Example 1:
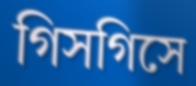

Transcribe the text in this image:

গিসগিসে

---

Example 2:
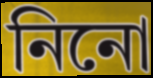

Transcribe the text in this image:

নিনো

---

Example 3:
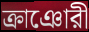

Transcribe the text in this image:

ক্রাঞোরী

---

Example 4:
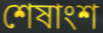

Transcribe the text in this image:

শেষাংশ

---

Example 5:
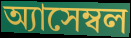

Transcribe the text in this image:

অ্যাসেম্বল